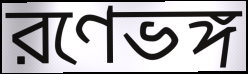
রণেভঙ্গ